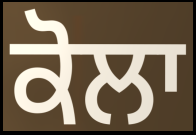
ਕੋਲਾ